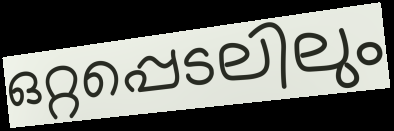
ഒറ്റപ്പെടലിലും